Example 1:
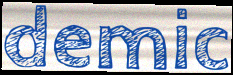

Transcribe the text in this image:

demic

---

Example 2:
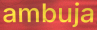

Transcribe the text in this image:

ambuja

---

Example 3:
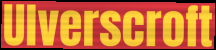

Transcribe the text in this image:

Ulverscroft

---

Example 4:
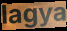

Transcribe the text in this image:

lagya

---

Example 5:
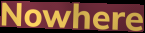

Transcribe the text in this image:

Nowhere